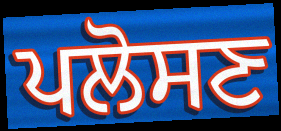
ਪਲੋਸਣ